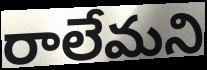
రాలేమని